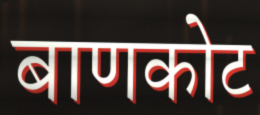
बाणकोट